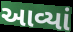
આવ્યાં